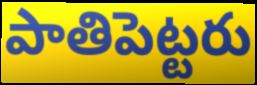
పాతిపెట్టరు